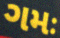
ગમઃ